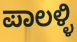
ಪಾಲಳ್ಳಿ